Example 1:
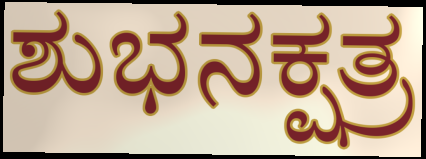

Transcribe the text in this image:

ಶುಭನಕ್ಷತ್ರ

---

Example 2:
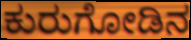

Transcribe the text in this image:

ಕುರುಗೋಡಿನ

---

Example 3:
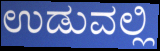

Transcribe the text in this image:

ಉಡುವಲ್ಲಿ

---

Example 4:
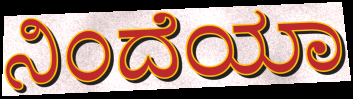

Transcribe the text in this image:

ನಿಂದೆಯಾ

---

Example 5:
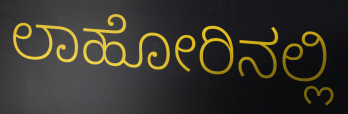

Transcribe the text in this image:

ಲಾಹೋರಿನಲ್ಲಿ